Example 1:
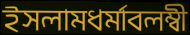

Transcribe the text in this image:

ইসলামধর্মাবলম্বী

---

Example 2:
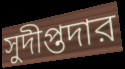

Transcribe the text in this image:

সুদীপ্তদার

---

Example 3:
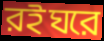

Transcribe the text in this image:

রইঘরে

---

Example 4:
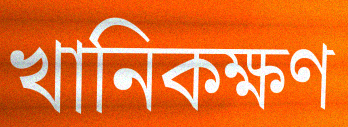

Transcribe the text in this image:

খানিকক্ষণ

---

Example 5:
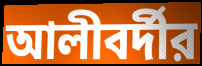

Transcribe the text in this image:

আলীবর্দীর